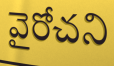
వైరోచని